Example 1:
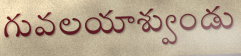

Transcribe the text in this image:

గువలయాశ్వుండు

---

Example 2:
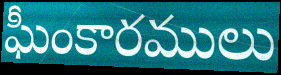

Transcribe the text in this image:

ఘీంకారములు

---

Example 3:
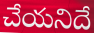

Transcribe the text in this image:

చేయనిదే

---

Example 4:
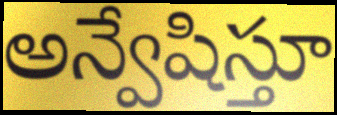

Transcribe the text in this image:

అన్వేషిస్తూ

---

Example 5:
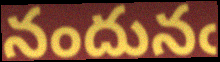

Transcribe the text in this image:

నందునఁ